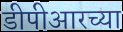
डीपीआरच्या